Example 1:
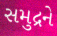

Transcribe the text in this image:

સમુદ્રને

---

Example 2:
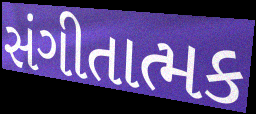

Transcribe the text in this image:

સંગીતાત્મક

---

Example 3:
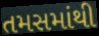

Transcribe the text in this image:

તમસમાંથી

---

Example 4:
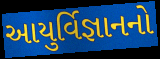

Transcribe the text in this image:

આયુર્વિજ્ઞાનનો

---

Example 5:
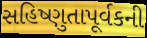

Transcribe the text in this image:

સહિષ્ણુતાપૂર્વકની